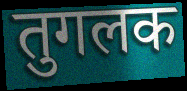
तुगलक